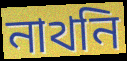
নাথনি